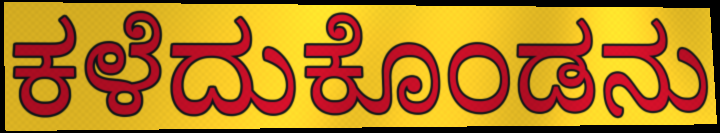
ಕಳೆದುಕೊಂಡನು